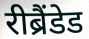
रीब्रैंडेड